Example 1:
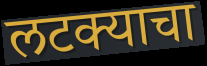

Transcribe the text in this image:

लटक्याचा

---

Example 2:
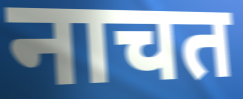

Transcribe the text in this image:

नाचत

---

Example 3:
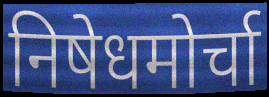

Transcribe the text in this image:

निषेधमोर्चा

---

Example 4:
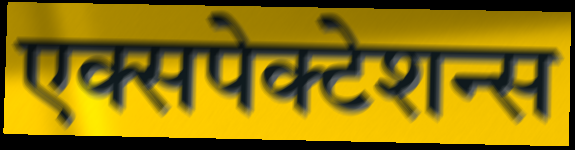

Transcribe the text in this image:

एक्सपेक्टेशन्स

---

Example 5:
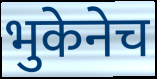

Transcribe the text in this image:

भुकेनेच